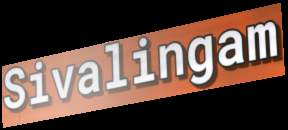
Sivalingam